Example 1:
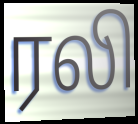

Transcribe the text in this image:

ரலி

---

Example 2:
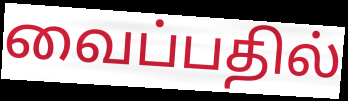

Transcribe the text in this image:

வைப்பதில்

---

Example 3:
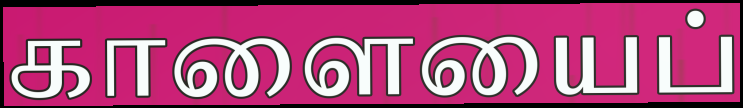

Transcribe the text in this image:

காளையைப்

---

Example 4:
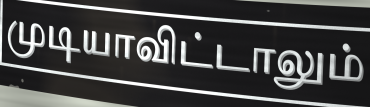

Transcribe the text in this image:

முடியாவிட்டாலும்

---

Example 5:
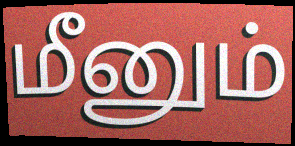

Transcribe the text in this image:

மீனும்